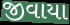
જીવાયા